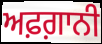
ਅਫ਼ਗ਼ਾਨੀ